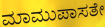
ಮಾಮುಪಾಸತೇ